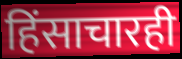
हिंसाचारही